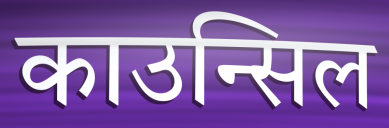
काउन्सिल